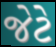
જેટે